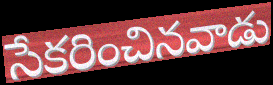
సేకరించినవాడు